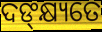
ଦଙ୍କ୍ଷ୍ଯତେ